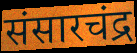
संसारचंद्र